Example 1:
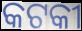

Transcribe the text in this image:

କଟକୀ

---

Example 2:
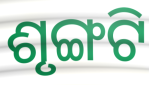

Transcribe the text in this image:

ଶୃଙ୍ଗଟି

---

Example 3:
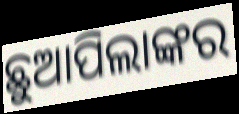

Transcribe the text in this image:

ଛୁଆପିଲାଙ୍କର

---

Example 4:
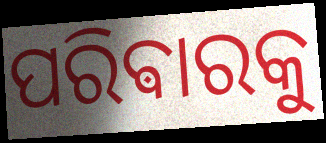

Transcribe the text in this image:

ପରିଵାରକୁ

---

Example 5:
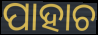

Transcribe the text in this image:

ପାହାଚ